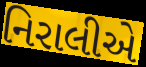
નિરાલીએ